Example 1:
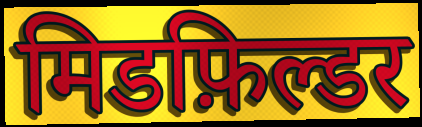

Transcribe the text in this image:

मिडफ़िल्डर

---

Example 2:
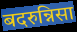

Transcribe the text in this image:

बदरुन्निसा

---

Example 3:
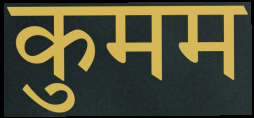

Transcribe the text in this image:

कुमम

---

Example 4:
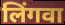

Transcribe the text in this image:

लिंगवा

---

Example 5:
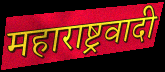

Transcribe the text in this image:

महाराष्ट्रवादी